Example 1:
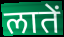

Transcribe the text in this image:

लातें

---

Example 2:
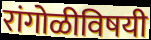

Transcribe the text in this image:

रांगोळीविषयी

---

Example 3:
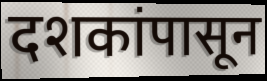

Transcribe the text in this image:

दशकांपासून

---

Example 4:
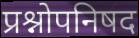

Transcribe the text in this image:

प्रश्नोपनिषद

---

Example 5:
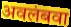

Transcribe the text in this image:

अवलंबवा